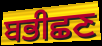
ਬਭੀਛਣ